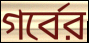
গর্বের